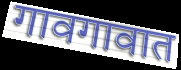
गावगावात